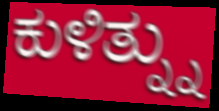
ಕುಳಿತ್ನ್ನು